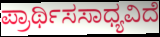
ಪ್ರಾರ್ಥಿಸಸಾಧ್ಯವಿದೆ